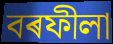
বৰফীলা